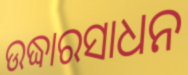
ଉଦ୍ଧାରସାଧନ